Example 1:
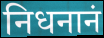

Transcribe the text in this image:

निधनानं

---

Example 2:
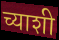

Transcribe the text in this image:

च्याशी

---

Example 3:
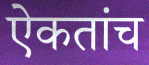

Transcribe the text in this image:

ऐकतांच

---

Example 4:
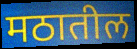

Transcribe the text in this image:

मठातील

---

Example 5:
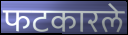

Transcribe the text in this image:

फटकारले